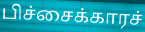
பிச்சைக்காரச்